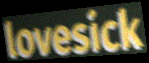
lovesick